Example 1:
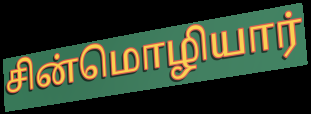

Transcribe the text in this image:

சின்மொழியார்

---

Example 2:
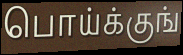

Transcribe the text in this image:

பொய்க்குங்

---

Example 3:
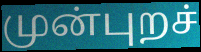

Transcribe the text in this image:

முன்புறச்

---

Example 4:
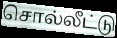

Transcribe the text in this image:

சொல்லீட்டு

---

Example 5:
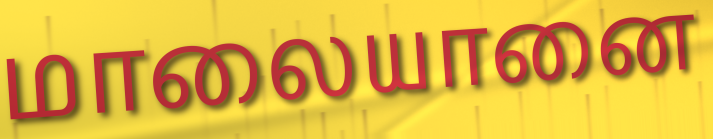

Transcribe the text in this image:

மாலையானை